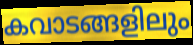
കവാടങ്ങളിലും